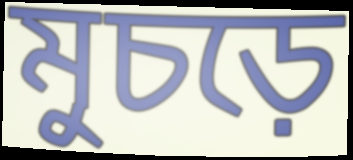
মুচড়ে